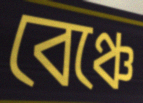
বেঞ্চে